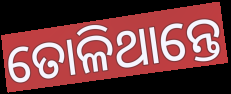
ତୋଳିଥାନ୍ତେ